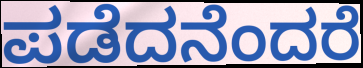
ಪಡೆದನೆಂದರೆ